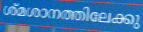
ശ്മശാനത്തിലേക്കു